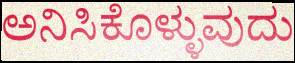
ಅನಿಸಿಕೊಳ್ಳುವುದು